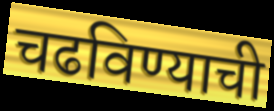
चढविण्याची